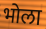
भोला